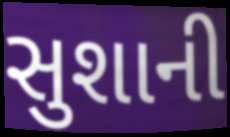
સુશાની